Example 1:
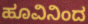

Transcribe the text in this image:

ಹೂವಿನಿಂದ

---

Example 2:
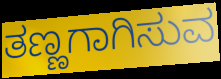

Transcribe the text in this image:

ತಣ್ಣಗಾಗಿಸುವ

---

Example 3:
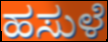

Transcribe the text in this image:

ಹಸುಳೆ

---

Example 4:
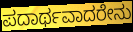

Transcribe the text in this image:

ಪದಾರ್ಥವಾದರೇನು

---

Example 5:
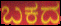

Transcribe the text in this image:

ಬಕದ